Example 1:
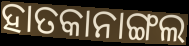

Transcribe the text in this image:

ହାତକାନାଙ୍ଗଲ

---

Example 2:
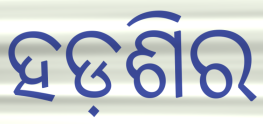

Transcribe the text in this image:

ହଡ଼ଶିର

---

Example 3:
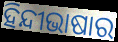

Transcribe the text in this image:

ହିନ୍ଦୀଭାଷାର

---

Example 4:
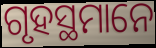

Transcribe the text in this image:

ଗୃହସ୍ଥମାନେ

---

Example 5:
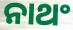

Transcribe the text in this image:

ନାଥଂ